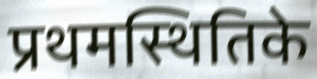
प्रथमस्थितिके